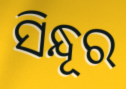
ସିନ୍ଧୂର